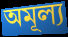
অমূল্য